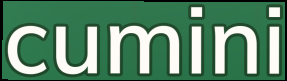
cumini